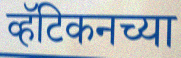
व्हॅटिकनच्या